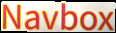
Navbox